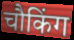
चौकिंग